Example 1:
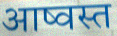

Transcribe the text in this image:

आष्वस्त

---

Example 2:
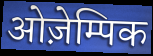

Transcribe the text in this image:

ओज़ेम्पिक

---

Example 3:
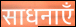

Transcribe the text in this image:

साधनाएँ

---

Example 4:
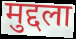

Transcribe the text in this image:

मुद्दला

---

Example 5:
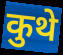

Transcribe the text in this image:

कुथे